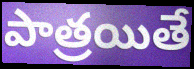
పాత్రయితే